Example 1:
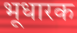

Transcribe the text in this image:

भूधारक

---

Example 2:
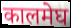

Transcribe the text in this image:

कालमेघ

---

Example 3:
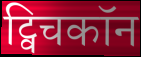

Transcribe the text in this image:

ट्विचकॉन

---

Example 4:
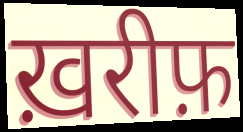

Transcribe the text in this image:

ख़रीफ़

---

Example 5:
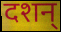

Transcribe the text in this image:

दशन्